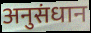
अनुसंधान